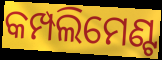
କମ୍ପଲିମେଣ୍ଟ